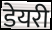
डेयरी